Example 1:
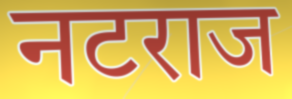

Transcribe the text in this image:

नटराज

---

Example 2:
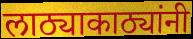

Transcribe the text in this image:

लाठ्याकाठ्यांनी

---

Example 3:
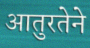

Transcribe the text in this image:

आतुरतेने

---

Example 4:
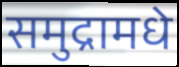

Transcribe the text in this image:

समुद्रामधे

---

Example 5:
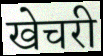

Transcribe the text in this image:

खेचरी